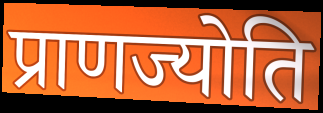
प्राणज्योति